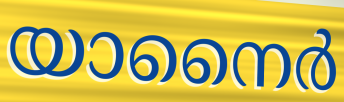
യാനൈർ